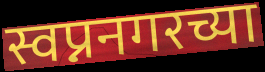
स्वप्ननगरच्या